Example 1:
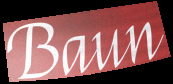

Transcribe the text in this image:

Baun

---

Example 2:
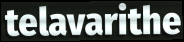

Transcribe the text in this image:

telavarithe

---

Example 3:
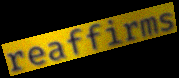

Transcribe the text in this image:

reaffirms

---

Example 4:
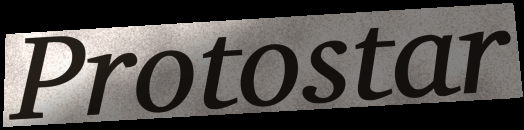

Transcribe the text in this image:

Protostar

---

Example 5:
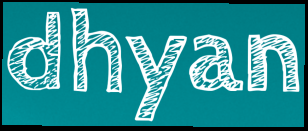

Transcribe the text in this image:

dhyan